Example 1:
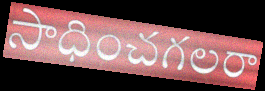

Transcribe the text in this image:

సాధించగలరా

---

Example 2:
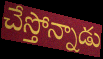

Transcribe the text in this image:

చేస్తోన్నాడు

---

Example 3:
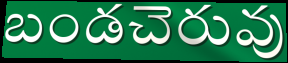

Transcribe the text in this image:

బండచెరువు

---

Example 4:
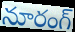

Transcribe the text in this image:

నూరంగ్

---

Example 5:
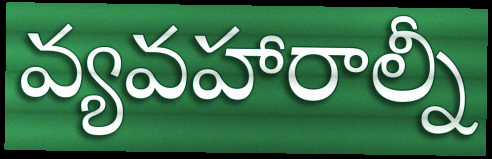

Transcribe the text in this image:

వ్యవహారాల్నీ